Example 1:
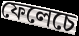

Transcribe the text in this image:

ফেলেচে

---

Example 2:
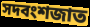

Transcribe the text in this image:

সদবংশজাত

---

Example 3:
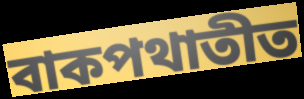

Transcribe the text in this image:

বাকপথাতীত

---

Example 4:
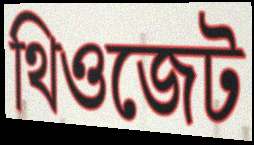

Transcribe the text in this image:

থিওজেট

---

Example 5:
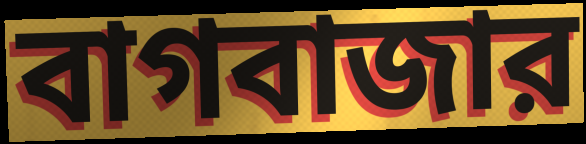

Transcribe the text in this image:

বাগবাজার